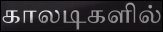
காலடிகளில்